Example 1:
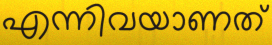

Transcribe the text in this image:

എന്നിവയാണത്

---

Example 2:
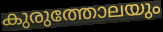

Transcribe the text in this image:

കുരുത്തോലയും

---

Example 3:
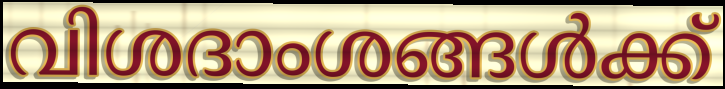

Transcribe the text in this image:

വിശദാംശങ്ങൾക്ക്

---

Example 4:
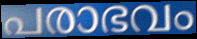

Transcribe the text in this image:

പരാഭവം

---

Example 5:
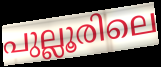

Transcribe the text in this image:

പുല്ലൂരിലെ